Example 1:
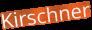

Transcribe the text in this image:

Kirschner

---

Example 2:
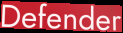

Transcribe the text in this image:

Defender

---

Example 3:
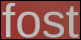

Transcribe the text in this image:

fost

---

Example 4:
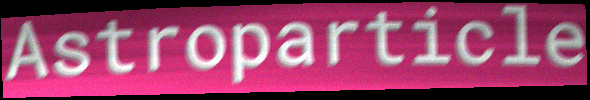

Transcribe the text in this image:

Astroparticle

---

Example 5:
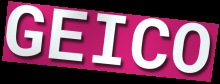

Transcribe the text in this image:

GEICO